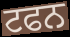
ਟਫਨ